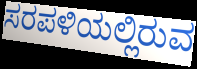
ಸರಪಳಿಯಲ್ಲಿರುವ